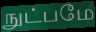
நுட்பமே